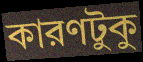
কারণটুকু